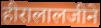
हीरालालजीने